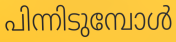
പിന്നിടുമ്പോൾ